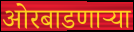
ओरबाडणाऱ्या